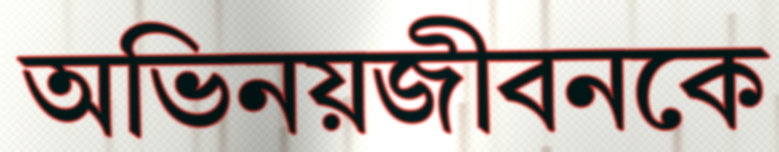
অভিনয়জীবনকে